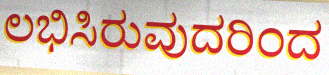
ಲಭಿಸಿರುವುದರಿಂದ